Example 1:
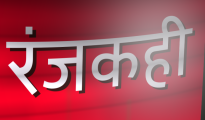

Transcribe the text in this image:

रंजकही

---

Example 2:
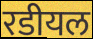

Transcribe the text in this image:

रडीयल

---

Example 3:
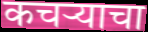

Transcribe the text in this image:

कचऱ्याचा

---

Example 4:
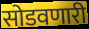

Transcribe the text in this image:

सोडवणारी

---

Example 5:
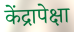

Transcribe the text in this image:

केंद्रापेक्षा